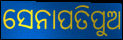
ସେନାପତିପୁଅ